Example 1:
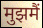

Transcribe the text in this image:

मुझमैं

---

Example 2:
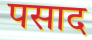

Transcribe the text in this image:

पसाद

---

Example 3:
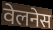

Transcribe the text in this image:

वेलनेस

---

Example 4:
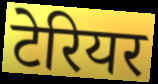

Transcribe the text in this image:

टेरियर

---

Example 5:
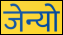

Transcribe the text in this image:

जेन्यो